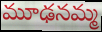
మూఢనమ్మ